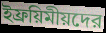
ইফ্রয়িমীয়দের